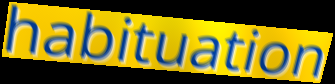
habituation